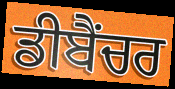
ਡੀਬੈਂਚਰ